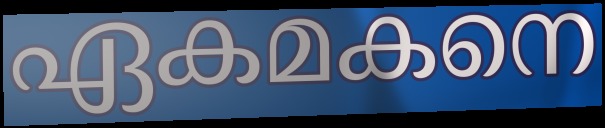
ഏകമകനെ